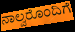
ನಾಲ್ವರೊಂದಿಗೆ